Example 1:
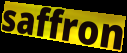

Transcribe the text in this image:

saffron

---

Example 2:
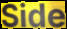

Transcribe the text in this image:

Side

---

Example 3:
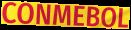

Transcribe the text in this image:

CONMEBOL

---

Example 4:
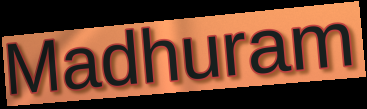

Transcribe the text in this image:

Madhuram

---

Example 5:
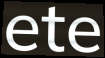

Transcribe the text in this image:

ete